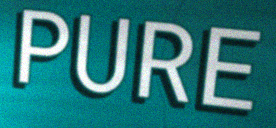
PURE